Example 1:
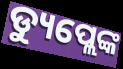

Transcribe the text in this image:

ଡ୍ୟୁପ୍ଲେଙ୍କ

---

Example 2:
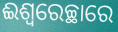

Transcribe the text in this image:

ଈଶ୍ୱରେଚ୍ଛାରେ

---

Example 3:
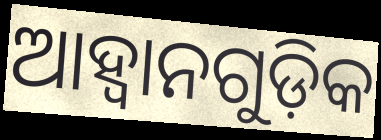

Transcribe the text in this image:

ଆହ୍ବାନଗୁଡ଼ିକ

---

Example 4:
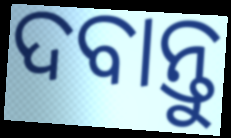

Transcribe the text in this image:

ଦବାନ୍ତୁ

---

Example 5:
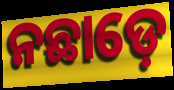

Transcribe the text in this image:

ନଛାଡ଼େ